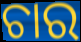
ଚାର